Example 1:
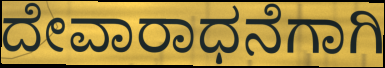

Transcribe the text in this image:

ದೇವಾರಾಧನೆಗಾಗಿ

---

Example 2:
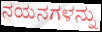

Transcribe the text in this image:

ನಯನಗಳನ್ನು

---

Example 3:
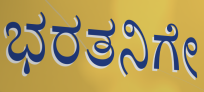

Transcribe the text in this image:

ಭರತನಿಗೇ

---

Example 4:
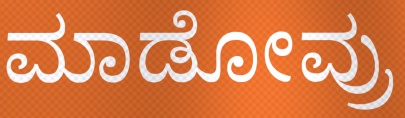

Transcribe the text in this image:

ಮಾಡೋವ್ರು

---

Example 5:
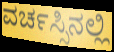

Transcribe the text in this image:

ವರ್ಚಸ್ಸಿನಲ್ಲಿ